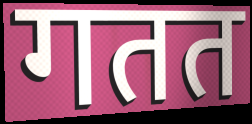
गतत